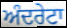
ਅੰਦਰੇਟਾ